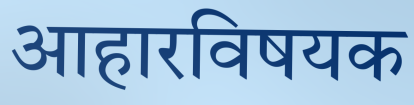
आहारविषयक